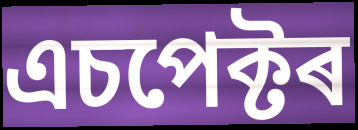
এচপেক্টৰ